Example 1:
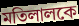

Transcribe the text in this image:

মতিলালকে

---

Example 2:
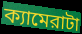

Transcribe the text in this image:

ক্যামেরাটা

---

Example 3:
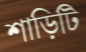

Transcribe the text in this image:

শাড়িটি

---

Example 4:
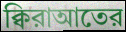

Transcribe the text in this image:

ক্বিরাআতের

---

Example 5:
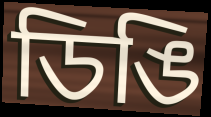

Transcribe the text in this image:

ডিঙি